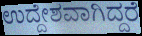
ಉದ್ದೇಶವಾಗಿದ್ದರೆ